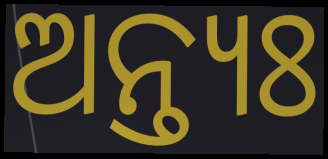
ଅନ୍ତ୍ୟଃ